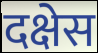
दक्षेस